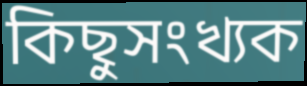
কিছুসংখ্যক